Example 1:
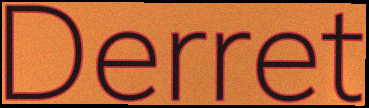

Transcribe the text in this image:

Derret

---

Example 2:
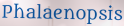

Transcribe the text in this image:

Phalaenopsis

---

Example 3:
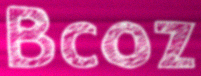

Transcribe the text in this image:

Bcoz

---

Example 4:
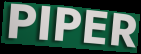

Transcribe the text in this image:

PIPER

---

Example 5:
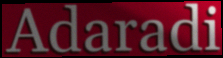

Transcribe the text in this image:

Adaradi